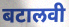
बटालवी